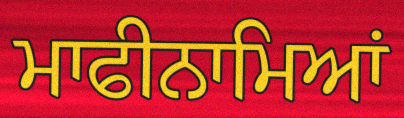
ਮਾਫੀਨਾਮਿਆਂ